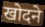
खोदने